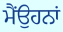
ਮੈਂਉਹਨਾਂ